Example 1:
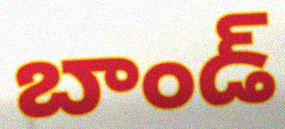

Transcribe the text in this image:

బాండ్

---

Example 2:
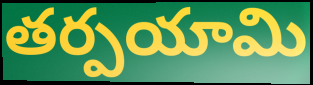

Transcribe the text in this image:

తర్పయామి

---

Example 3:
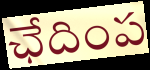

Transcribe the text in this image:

ఛేదింప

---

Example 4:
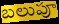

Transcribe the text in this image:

బలుపూ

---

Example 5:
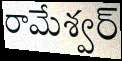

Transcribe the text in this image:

రామేశ్వర్